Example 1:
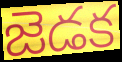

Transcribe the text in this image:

జెడక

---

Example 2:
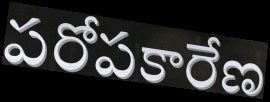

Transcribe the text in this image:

పరోపకారేణ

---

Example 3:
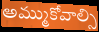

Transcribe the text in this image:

అమ్ముకోవాల్సి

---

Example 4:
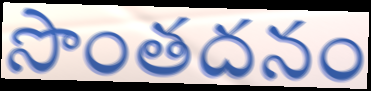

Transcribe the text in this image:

సొంతదనం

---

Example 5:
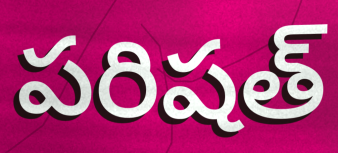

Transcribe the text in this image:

పరిషత్